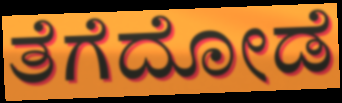
ತೆಗೆದೋಡೆ